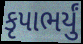
કૃપાભર્યું